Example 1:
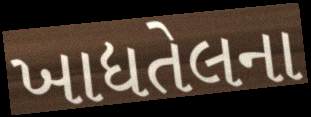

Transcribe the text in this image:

ખાદ્યતેલના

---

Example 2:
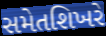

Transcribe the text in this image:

સમેતશિખરે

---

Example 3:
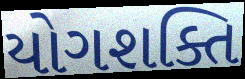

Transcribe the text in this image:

યોગશક્તિ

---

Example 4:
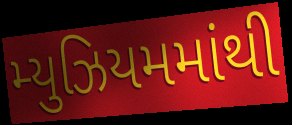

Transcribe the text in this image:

મ્યુઝિયમમાંથી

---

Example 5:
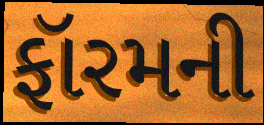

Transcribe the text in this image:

ફૉરમની